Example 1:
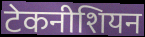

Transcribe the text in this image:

टेकनीशियन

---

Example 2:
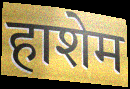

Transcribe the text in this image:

हाशेम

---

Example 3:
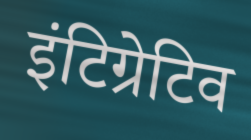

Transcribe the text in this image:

इंटिग्रेटिव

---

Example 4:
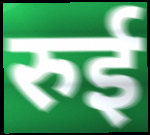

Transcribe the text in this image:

रुई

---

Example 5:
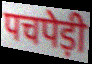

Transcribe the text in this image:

पचपेड़ी